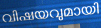
വിഷയവുമായി